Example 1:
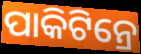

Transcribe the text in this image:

ପାକିଟିନ୍ରେ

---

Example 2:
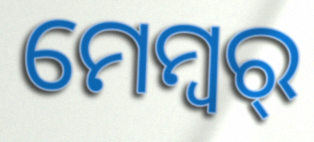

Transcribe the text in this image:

ମେମ୍ବର୍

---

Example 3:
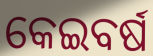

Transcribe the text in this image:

କେଇବର୍ଷ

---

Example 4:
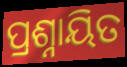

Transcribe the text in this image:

ପ୍ରଶ୍ନାୟିତ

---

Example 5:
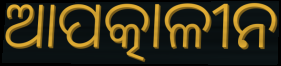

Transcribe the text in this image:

ଆପତ୍କାଳୀନ